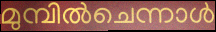
മുമ്പിൽചെന്നാൾ